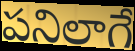
పనిలాగే